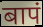
बापं